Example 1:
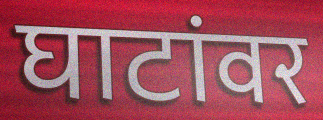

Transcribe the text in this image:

घाटांवर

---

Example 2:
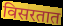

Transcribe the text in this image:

विसरतात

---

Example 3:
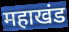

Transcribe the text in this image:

महाखंड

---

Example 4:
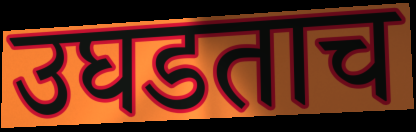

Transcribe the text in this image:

उघडताच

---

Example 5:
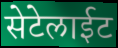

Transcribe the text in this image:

सेटेलाईट